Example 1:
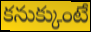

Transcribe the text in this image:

కనుక్కుంటే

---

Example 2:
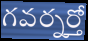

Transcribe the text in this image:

గవర్నర్తో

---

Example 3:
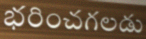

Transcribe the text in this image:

భరించగలడు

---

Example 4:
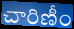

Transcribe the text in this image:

చారిణీం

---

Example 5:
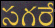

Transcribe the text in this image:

సగరే